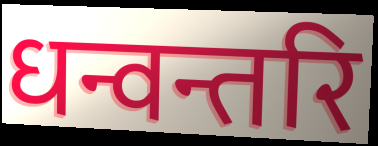
धन्वन्तरि